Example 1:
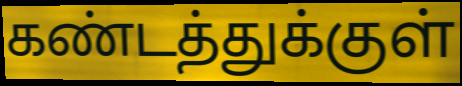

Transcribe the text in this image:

கண்டத்துக்குள்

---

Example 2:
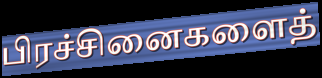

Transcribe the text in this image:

பிரச்சினைகளைத்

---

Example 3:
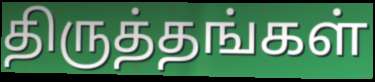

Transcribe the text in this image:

திருத்தங்கள்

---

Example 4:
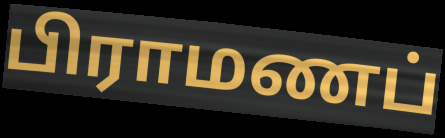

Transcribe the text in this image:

பிராமணப்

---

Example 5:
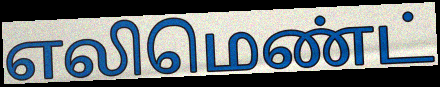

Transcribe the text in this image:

எலிமெண்ட்